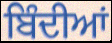
ਬਿੰਦੀਆਂ